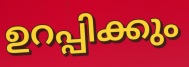
ഉറപ്പിക്കും